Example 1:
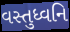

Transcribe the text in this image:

વસ્તુધ્વનિ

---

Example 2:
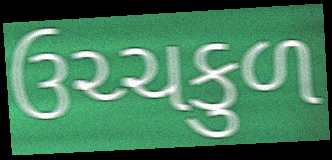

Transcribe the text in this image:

ઉચ્ચકુળ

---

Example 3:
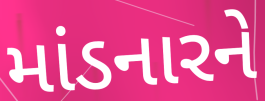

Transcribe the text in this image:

માંડનારને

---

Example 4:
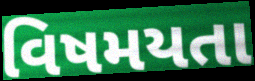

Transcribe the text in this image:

વિષમયતા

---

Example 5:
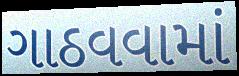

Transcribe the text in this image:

ગાઠવવામાં